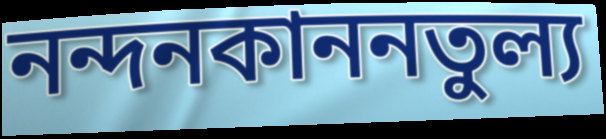
নন্দনকাননতুল্য